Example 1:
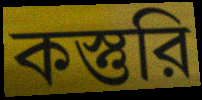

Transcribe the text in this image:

কস্তুরি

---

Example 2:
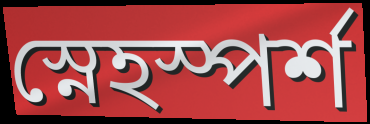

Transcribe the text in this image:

স্নেহস্পর্শ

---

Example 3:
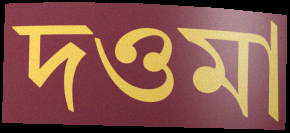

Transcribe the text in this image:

দওমা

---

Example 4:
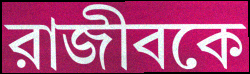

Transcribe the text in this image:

রাজীবকে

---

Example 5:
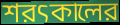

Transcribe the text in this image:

শরৎকালের